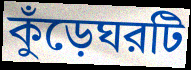
কুঁড়েঘরটি